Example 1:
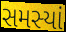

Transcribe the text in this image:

સમસ્યાં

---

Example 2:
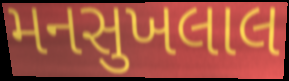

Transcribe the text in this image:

મનસુખલાલ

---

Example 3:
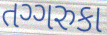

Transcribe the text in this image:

તગ્ગરુકા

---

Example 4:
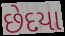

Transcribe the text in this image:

છેદયા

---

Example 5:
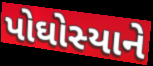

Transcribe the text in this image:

પોઘોસ્યાને